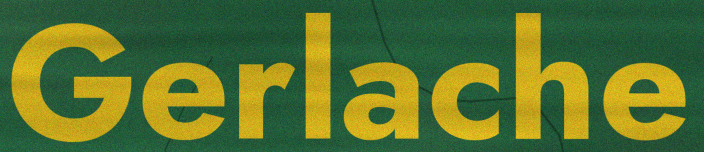
Gerlache